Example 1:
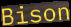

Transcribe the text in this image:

Bison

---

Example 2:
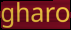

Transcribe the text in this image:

gharo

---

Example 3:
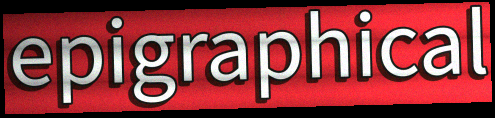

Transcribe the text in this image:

epigraphical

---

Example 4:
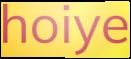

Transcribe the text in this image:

hoiye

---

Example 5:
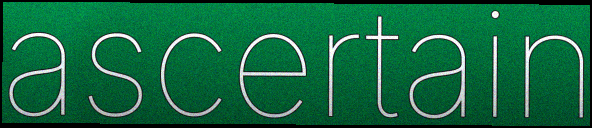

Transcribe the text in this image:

ascertain